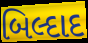
બિલ્દાદ